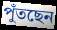
পুঁতছেন